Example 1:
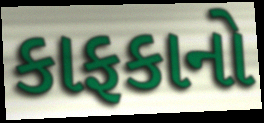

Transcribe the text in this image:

કાફકાનો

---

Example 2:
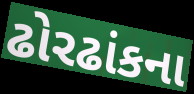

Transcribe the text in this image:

ઢોરઢાંકના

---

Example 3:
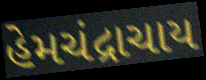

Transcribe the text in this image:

હેમચંદ્રાચાય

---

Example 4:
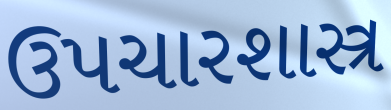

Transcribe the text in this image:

ઉપચારશાસ્ત્ર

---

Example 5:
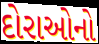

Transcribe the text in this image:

દોરાઓનો